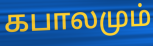
கபாலமும்